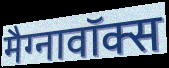
मैग्नावॉक्स